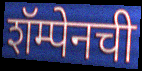
शॅम्पेनची